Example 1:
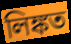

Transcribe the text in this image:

লিঙ্কত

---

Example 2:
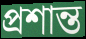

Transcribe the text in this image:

প্ৰশান্ত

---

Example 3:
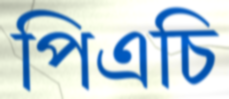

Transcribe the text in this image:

পিএচি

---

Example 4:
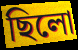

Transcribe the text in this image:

ছিলো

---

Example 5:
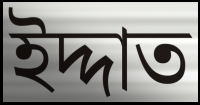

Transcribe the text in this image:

ইদ্দাত